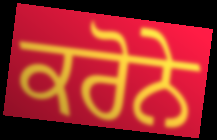
ਕਰੋਨੇ